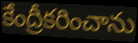
కేంద్రీకరించాను